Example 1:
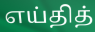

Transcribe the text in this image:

எய்தித்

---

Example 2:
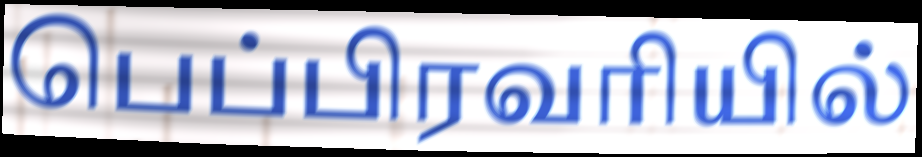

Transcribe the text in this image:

பெப்பிரவரியில்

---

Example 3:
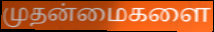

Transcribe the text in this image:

முதன்மைகளை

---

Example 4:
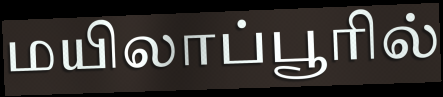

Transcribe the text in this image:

மயிலாப்பூரில்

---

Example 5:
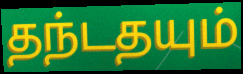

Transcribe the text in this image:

தந்டதயும்